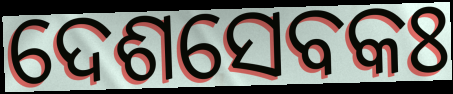
ଦେଶସେବକଃ